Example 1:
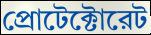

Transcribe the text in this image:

প্রোটেক্টোরেট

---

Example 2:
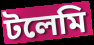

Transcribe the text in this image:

টলেমি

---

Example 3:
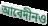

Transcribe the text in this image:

আবেদীনও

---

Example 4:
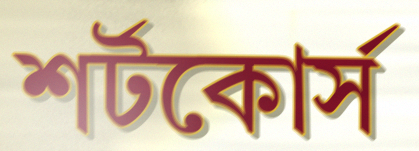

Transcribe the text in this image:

শর্টকোর্স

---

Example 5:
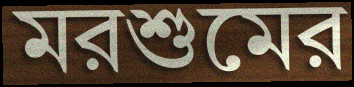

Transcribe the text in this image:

মরশুমের